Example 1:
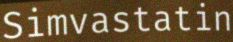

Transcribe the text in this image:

Simvastatin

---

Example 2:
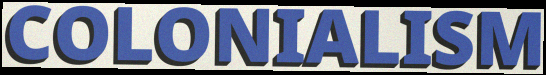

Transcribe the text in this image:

COLONIALISM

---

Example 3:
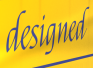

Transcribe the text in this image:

designed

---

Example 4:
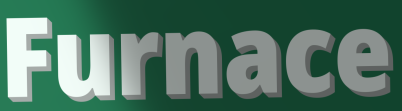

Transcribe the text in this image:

Furnace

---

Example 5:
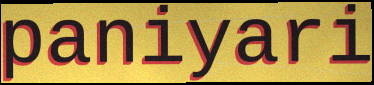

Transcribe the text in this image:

paniyari